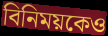
বিনিময়কেও